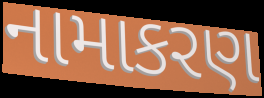
નામાકરણ